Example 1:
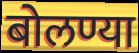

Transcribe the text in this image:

बोलण्या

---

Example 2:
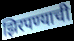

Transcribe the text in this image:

झिरपण्याची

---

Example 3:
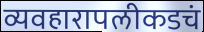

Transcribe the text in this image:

व्यवहारापलीकडचं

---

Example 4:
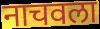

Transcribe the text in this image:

नाचवला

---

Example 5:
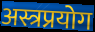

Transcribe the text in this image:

अस्त्रप्रयोग